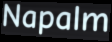
Napalm